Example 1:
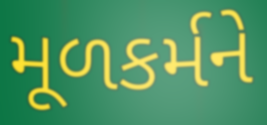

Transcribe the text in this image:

મૂળકર્મને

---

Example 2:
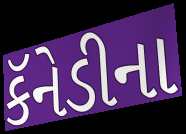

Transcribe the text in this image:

કૅનેડીના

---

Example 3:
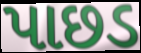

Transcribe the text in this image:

પાછડ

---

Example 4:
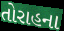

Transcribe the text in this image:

તોરાહના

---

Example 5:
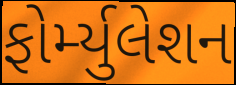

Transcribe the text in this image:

ફોર્મ્યુલેશન